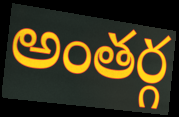
అంతర్గ